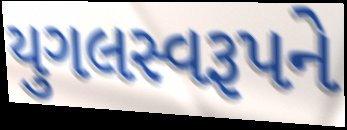
યુગલસ્વરૂપને